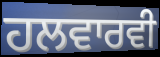
ਹਲਵਾਰਵੀ